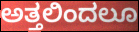
ಅತ್ತಲಿಂದಲೂ